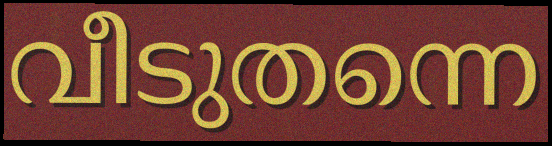
വീടുതന്നെ